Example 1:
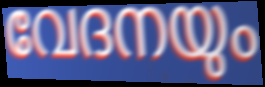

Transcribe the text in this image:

വേദനയും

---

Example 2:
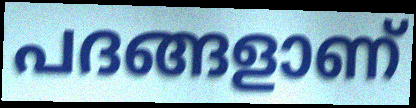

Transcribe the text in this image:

പദങ്ങളാണ്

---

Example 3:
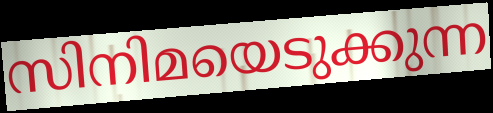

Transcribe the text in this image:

സിനിമയെടുക്കുന്ന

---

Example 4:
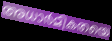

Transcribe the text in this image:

അധാർമികതയെ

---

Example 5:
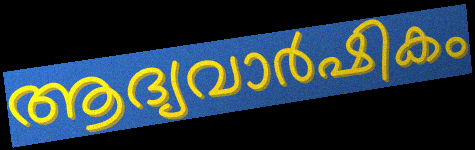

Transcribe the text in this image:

ആദ്യവാർഷികം